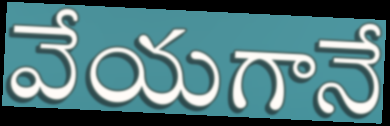
వేయగానే